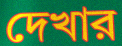
দেখার